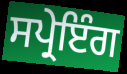
ਸਪ੍ਰੇਇੰਗ